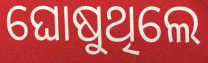
ଘୋଷୁଥିଲେ